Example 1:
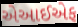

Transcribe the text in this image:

એઆઈએફ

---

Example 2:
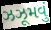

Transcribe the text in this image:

ઝઝૂમવું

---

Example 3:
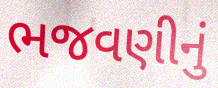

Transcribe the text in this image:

ભજવણીનું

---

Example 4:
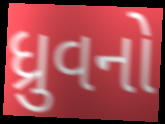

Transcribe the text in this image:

ધ્રુવનો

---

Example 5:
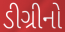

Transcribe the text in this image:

ડીગ્રીનો